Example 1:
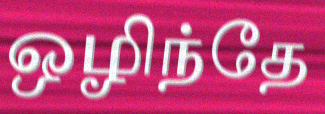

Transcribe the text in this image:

ஒழிந்தே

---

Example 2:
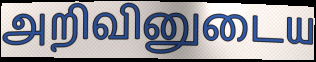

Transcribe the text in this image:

அறிவினுடைய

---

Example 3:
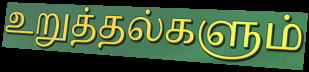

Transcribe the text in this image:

உறுத்தல்களும்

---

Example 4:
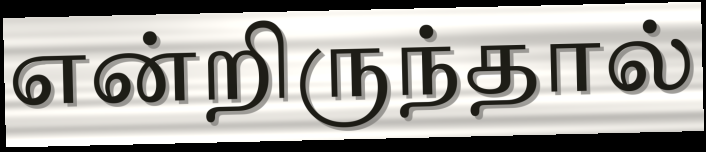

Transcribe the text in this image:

என்றிருந்தால்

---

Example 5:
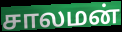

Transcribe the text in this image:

சாலமன்